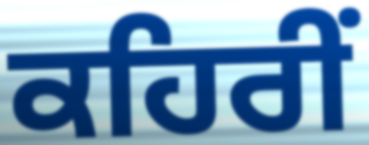
ਕਹਿਰੀਂ